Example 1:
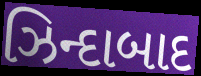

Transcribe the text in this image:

ઝિન્દાબાદ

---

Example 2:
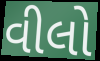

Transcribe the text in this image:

વીલો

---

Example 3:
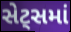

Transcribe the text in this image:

સેટ્સમાં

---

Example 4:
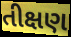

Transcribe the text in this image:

તીક્ષણ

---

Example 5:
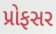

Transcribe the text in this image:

પ્રોફસર